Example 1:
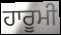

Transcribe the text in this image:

ਹਾਰੂਮੀ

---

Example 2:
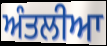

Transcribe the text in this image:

ਅੰਤਲੀਆ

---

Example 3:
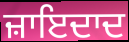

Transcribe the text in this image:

ਜ਼ਾਇਦਾਦ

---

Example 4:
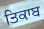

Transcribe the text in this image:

ਤਿਕਾਬ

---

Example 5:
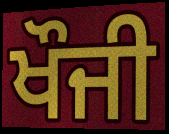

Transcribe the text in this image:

ਖੌਜੀ